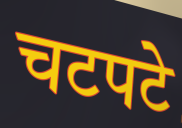
चटपटे